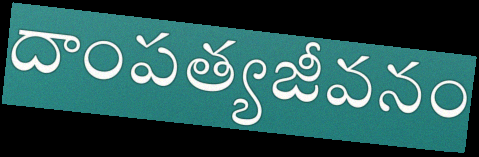
దాంపత్యజీవనం